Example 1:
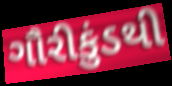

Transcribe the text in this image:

ગૌરીકુંડથી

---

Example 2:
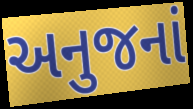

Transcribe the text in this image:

અનુજનાં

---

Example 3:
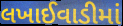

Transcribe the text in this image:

લખાઈવાડીમાં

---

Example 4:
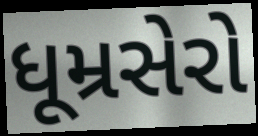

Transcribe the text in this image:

ધૂમ્રસેરો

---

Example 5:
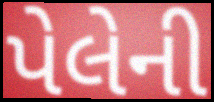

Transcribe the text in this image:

પેલેની